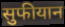
सुफीयान